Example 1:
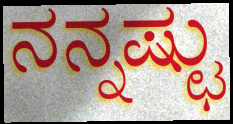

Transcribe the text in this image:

ನನ್ನಷ್ಟು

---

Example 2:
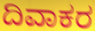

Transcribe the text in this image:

ದಿವಾಕರ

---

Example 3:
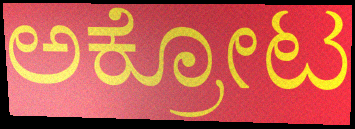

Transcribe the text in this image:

ಅಕ್ರೋಟ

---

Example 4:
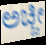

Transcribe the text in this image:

ಅಚ್ಚೀ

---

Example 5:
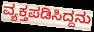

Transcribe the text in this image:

ವ್ಯಕ್ತಪಡಿಸಿದ್ದನು